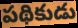
పథికుడు